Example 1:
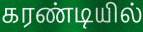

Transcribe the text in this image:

கரண்டியில்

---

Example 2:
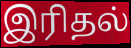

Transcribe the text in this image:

இரிதல்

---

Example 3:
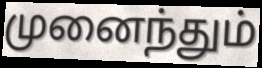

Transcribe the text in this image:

முனைந்தும்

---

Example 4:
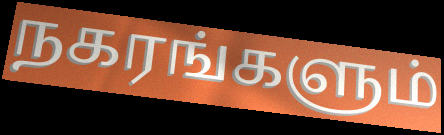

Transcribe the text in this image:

நகரங்களும்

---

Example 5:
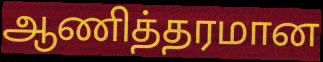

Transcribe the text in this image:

ஆணித்தரமான